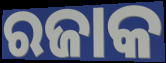
ରଜାକ